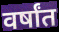
वर्षांत